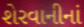
શેરવાનીનાં